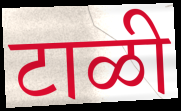
टाळी